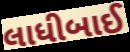
લાધીબાઈ